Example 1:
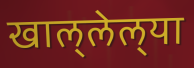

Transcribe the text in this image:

खाल्लेल्या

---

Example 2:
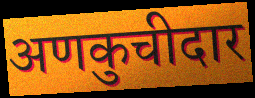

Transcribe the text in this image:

अणकुचीदार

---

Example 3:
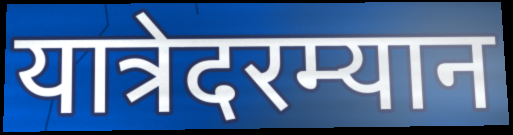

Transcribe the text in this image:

यात्रेदरम्यान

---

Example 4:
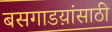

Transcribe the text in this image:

बसगाडय़ांसाठी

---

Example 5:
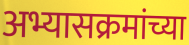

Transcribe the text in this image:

अभ्यासक्रमांच्या